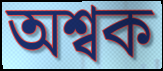
অশ্বক